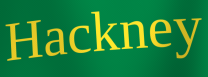
Hackney